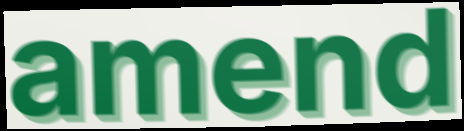
amend